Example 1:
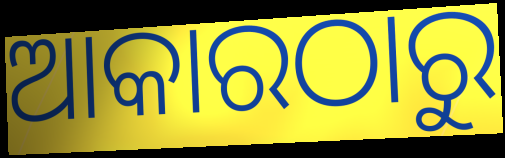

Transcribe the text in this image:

ଆକାରଠାରୁ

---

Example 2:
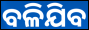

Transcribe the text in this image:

ବଳିଯିବ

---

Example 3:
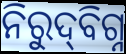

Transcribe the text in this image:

ନିରୁଦ୍‍ବିଗ୍ନ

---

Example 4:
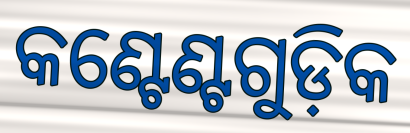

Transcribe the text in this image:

କଣ୍ଟେଣ୍ଟଗୁଡ଼ିକ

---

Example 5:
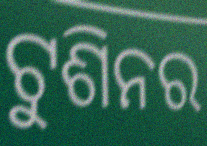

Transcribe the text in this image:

ଟୁଶିନର